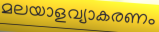
മലയാളവ്യാകരണം